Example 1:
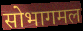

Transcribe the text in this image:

सोभागमल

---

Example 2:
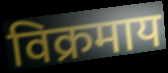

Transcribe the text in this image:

विक्रमाय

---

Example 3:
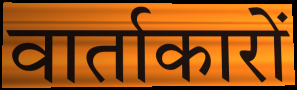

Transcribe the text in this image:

वार्ताकारों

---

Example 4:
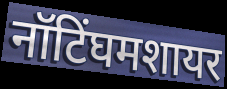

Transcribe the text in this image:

नॉटिंघमशायर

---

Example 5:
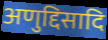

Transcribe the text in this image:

अणुद्दिसादि